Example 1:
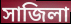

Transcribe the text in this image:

সাজিলা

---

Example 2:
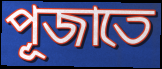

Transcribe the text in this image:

পূজাতে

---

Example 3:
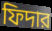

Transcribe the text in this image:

ফিদার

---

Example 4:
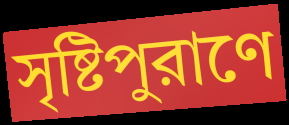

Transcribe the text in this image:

সৃষ্টিপুরাণে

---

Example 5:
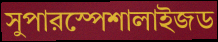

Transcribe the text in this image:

সুপারস্পেশালাইজড